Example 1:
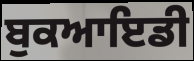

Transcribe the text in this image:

ਬੁਕਆਇਡੀ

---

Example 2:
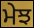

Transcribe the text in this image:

ਮੇਝ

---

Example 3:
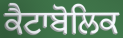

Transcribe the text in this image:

ਕੈਟਾਬੋਲਿਕ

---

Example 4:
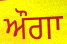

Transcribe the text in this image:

ਔਗਾ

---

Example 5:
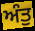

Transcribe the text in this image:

ਅੰਤੁ